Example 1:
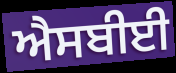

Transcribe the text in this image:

ਐਸਬੀਈ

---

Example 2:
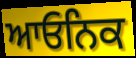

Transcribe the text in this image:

ਆਓਨਿਕ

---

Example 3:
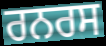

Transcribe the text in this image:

ਰਨਰਸ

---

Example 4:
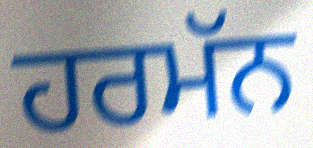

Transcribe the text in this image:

ਹਰਮੱਨ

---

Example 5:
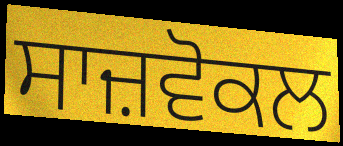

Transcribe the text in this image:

ਸਾਜ਼ਵੋਕਲ